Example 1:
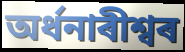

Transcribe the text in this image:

অৰ্ধনাৰীশ্বৰ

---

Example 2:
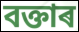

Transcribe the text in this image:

বক্তাৰ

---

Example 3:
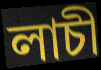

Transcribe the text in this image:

লাচী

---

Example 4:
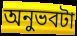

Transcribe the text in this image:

অনুভবটা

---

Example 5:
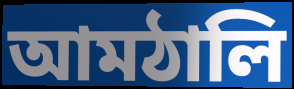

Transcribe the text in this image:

আমঠালি